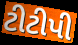
ટીટીપી